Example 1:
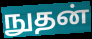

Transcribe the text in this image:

நுதன்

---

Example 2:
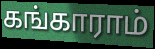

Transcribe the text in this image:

கங்காராம்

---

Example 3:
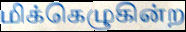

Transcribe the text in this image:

மிக்கெழுகின்ற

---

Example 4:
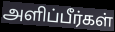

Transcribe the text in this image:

அளிப்பீர்கள்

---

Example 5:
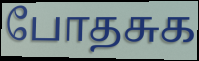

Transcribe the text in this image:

போதசுக